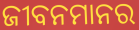
ଜୀବନମାନର